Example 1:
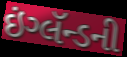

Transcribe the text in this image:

ઇંગ્લૅન્ડની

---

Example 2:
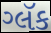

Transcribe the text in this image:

ગ્લૅક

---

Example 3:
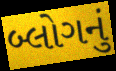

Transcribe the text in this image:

બ્લોગનું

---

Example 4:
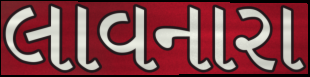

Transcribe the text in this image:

લાવનારા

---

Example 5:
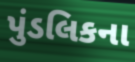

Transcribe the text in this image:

પુંડલિકના